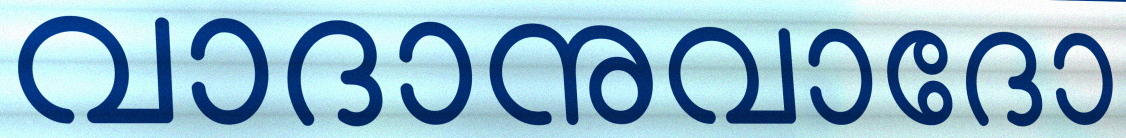
വാദാനുവാദോ